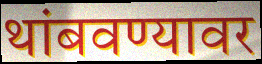
थांबवण्यावर